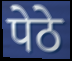
पेठे